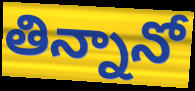
తిన్నానో